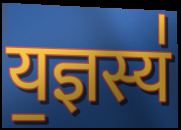
य॒ज्ञस्य॑